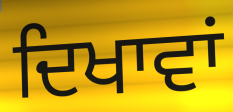
ਦਿਖਾਵਾਂ